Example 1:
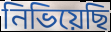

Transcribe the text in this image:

নিভিয়েছি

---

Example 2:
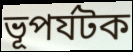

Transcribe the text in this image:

ভূপর্যটক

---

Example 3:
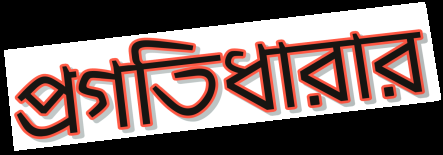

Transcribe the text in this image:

প্রগতিধারার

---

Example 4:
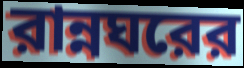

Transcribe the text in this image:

রান্নঘরের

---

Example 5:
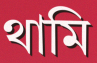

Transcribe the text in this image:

থামি